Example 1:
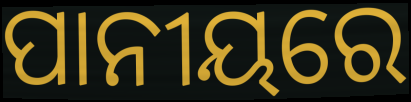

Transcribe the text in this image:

ପାନୀୟରେ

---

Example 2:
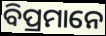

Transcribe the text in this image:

ବିପ୍ରମାନେ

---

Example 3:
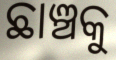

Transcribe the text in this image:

ଛାଞ୍ଚକୁ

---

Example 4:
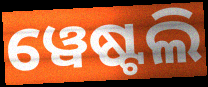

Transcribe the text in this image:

ୱେଷ୍ଟଲି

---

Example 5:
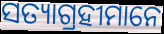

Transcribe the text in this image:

ସତ୍ୟାଗ୍ରହୀମାନେ